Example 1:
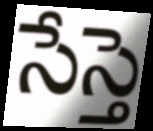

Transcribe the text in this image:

సేస్తె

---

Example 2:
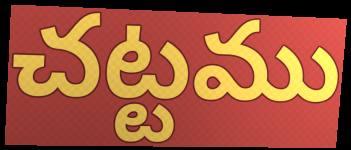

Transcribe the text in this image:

చట్టము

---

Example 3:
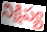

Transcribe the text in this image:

నిక్షిప్య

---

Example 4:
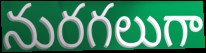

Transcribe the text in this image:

నురగలుగా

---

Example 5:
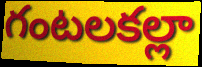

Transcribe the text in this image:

గంటలకల్లా